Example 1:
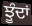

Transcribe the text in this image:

ਝੂੰਦਾਂ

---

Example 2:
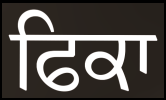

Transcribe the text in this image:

ਫਿਕਾ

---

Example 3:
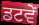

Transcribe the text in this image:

ਡਟਵੇਂ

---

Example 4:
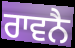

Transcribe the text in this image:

ਰਾਵਨੈ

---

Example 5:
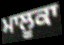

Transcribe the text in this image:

ਮਾਲੂਕਾ